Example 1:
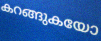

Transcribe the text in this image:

കറങ്ങുകയോ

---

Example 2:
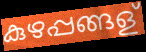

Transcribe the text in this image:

കുഴപ്പങ്ങള്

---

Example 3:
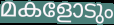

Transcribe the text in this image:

മകളോടും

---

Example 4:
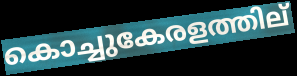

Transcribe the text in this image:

കൊച്ചുകേരളത്തില്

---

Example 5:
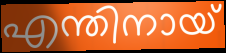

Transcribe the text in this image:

എന്തിനായ്